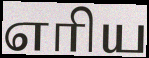
எரிய